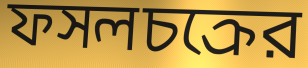
ফসলচক্রের